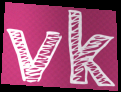
vk